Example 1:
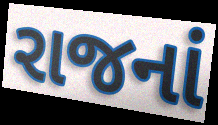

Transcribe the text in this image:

રાજનાં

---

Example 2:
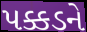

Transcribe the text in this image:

પક્કડને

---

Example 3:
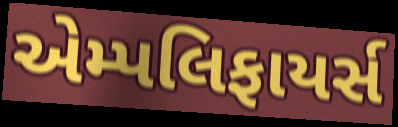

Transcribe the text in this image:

એમ્પલિફાયર્સ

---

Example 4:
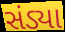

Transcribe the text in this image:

સંડ્યા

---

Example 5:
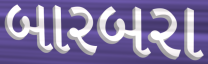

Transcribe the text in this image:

બારબરા